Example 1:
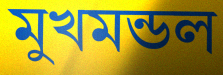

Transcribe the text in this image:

মুখমন্ডল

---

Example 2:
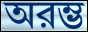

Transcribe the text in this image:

অরম্ভ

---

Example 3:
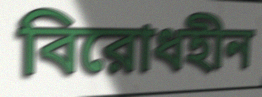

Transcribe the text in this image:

বিরোধহীন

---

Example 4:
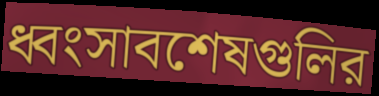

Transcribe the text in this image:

ধ্বংসাবশেষগুলির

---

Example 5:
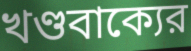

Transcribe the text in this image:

খণ্ডবাক্যের